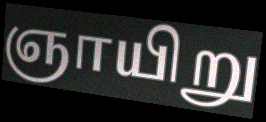
ஞாயிறு